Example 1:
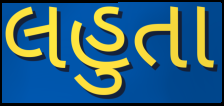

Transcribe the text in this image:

લહુતા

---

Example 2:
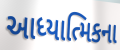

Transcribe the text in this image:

આધ્યાત્મિકના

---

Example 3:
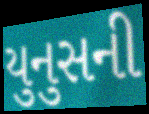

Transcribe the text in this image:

યુનુસની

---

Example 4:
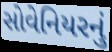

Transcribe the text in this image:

સોવેનિયરનું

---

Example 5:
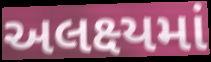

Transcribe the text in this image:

અલક્ષ્યમાં